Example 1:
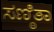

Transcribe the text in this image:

ಸಣ್ಠಿತಾ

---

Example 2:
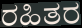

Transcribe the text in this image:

ರಹಿತರ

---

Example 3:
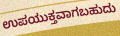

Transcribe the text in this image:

ಉಪಯುಕ್ತವಾಗಬಹುದು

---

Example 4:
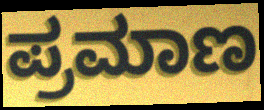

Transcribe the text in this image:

ಪ್ರಮಾಣ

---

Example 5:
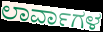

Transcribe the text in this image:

ಲಾರ್ವಾಗಳ